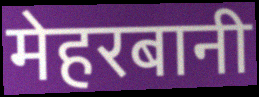
मेहरबानी